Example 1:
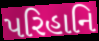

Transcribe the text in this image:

પરિહાનિ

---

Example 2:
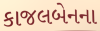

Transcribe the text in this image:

કાજલબેનના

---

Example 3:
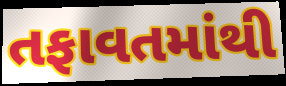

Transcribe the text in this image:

તફાવતમાંથી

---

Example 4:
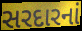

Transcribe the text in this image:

સરદારનાં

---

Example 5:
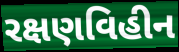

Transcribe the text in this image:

રક્ષણવિહીન